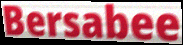
Bersabee